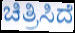
ಚಿತ್ರಿಸಿದೆ